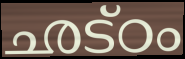
ഛട്ഠം